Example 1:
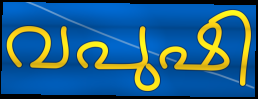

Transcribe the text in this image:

വപുഷി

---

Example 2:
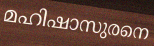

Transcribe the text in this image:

മഹിഷാസുരനെ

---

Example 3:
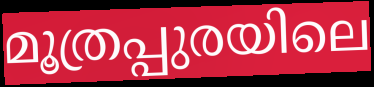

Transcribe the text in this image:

മൂത്രപ്പുരയിലെ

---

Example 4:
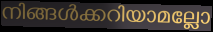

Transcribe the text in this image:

നിങ്ങൾക്കറിയാമല്ലോ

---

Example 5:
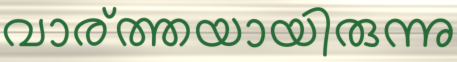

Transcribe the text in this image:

വാര്ത്തയായിരുന്നു